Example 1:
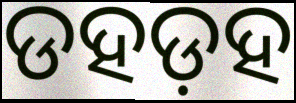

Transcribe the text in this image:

ଡହଡ଼ହ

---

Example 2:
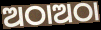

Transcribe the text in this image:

ଅଠାଅଠା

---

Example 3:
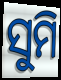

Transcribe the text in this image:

ସୁମି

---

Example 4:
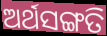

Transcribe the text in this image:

ଅର୍ଥସଙ୍ଗତି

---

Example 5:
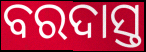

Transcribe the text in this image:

ବରଦାସ୍ତ